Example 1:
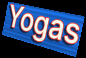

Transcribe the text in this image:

Yogas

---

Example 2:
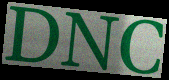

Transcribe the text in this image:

DNC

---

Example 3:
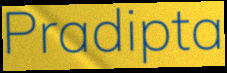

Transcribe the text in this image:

Pradipta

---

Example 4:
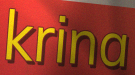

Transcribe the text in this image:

krina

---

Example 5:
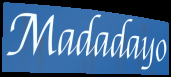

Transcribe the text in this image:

Madadayo